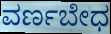
ವರ್ಣಬೇಧ